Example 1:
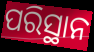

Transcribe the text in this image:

ପରିସ୍ଥାନ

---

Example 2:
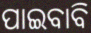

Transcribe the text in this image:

ପାଇବାବି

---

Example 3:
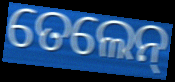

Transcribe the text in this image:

ତେଲେନ୍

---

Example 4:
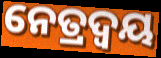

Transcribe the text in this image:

ନେତ୍ରଦ୍ଵୟ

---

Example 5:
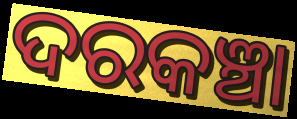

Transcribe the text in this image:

ଦରକଞ୍ଚା